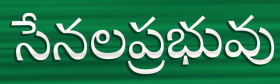
సేనలప్రభువు